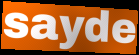
sayde